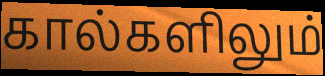
கால்களிலும்